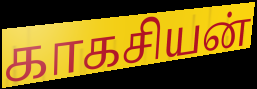
காகசியன்